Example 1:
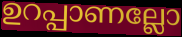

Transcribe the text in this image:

ഉറപ്പാണല്ലോ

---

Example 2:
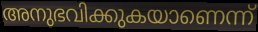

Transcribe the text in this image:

അനുഭവിക്കുകയാണെന്ന്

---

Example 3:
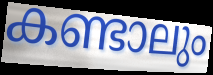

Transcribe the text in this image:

കണ്ടാലും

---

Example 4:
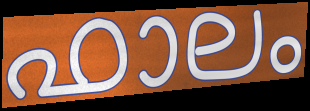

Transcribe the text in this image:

ഫാലം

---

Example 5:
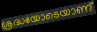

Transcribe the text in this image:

ശ്രദ്ധയോടെയാണ്